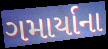
ગમાર્યાના